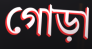
গোড়া